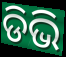
ଡିଭି